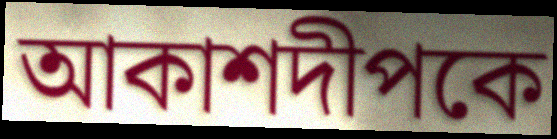
আকাশদীপকে